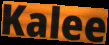
Kalee